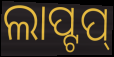
ଲାପ୍ଟପ୍